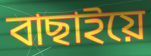
বাছাইয়ে